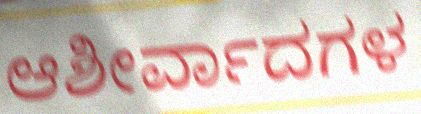
ಆಶೀರ್ವಾದಗಳ